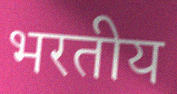
भरतीय